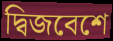
দ্বিজবেশে